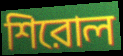
শিরোল